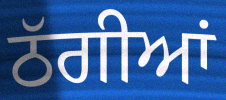
ਠੱਗੀਆਂ